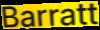
Barratt